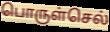
பொருள்செல்